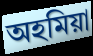
অহমিয়া